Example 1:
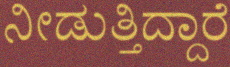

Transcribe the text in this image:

ನೀಡುತ್ತಿದ್ದಾರೆ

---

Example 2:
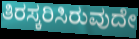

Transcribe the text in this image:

ತಿರಸ್ಕರಿಸಿರುವುದೇ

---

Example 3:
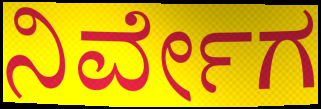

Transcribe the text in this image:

ನಿರ್ವೇಗ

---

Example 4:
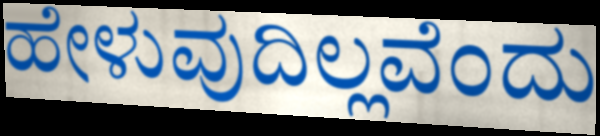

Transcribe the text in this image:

ಹೇಳುವುದಿಲ್ಲವೆಂದು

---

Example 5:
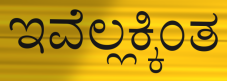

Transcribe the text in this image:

ಇವೆಲ್ಲಕ್ಕಿಂತ